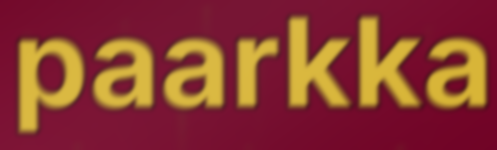
paarkka